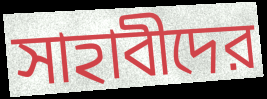
সাহাবীদের